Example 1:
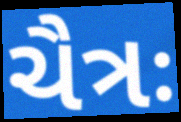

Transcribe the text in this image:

ચૈત્રઃ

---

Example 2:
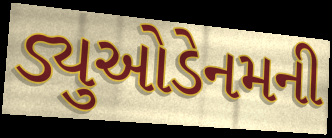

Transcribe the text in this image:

ડ્યુઓડેનમની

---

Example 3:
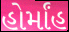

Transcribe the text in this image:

હોર્માંહ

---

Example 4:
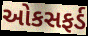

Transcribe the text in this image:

ઓકસફર્ડ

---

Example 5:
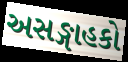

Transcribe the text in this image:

અસઙ્ગાહકો